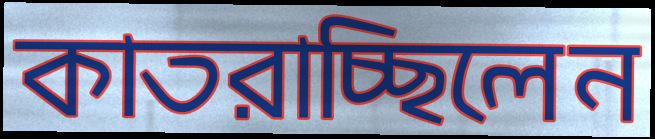
কাতরাচ্ছিলেন